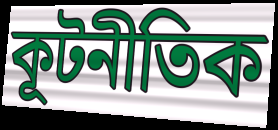
কূটনীতিক